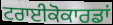
ਟਰਾਈਕੋਕਾਰਡਾਂ